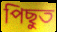
পিছুত